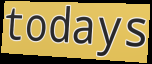
todays